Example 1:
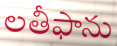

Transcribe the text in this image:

లతీఫాను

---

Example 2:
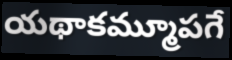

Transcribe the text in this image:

యథాకమ్మూపగే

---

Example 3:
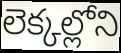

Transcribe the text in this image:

లెక్కల్లోని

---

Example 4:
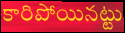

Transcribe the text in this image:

కారిపోయినట్టు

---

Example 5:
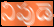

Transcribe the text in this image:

నిపుడె